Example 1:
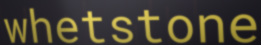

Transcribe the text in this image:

whetstone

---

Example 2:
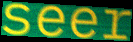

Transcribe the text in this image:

seer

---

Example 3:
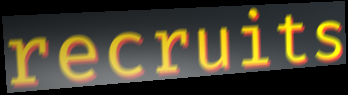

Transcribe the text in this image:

recruits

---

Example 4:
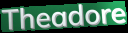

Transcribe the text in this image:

Theadore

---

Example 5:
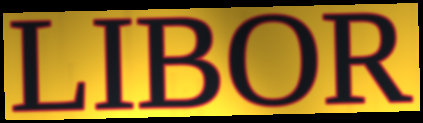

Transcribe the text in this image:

LIBOR